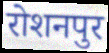
रोशनपुर